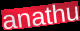
anathu